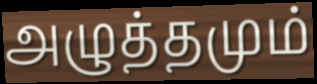
அழுத்தமும்